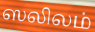
ஸலிலம்